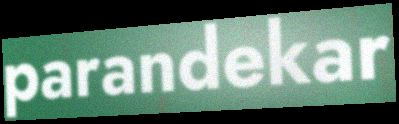
parandekar